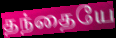
தந்தையே